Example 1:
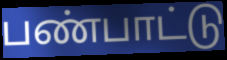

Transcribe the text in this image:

பண்பாட்டு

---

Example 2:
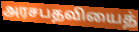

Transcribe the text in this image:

அரசபதவியைத்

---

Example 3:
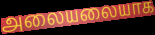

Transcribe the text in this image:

அலையலையாக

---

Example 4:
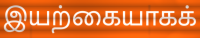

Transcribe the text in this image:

இயற்கையாகக்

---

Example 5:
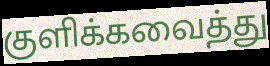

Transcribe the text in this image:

குளிக்கவைத்து